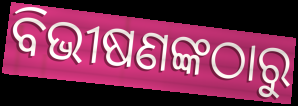
ବିଭୀଷଣଙ୍କଠାରୁ